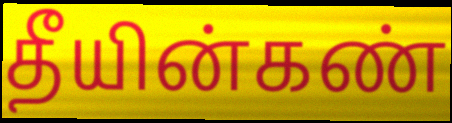
தீயின்கண்